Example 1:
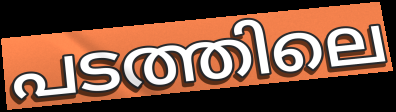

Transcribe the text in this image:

പടത്തിലെ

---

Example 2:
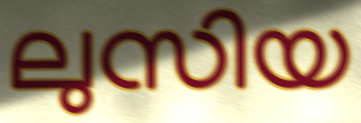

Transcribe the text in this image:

ലുസിയ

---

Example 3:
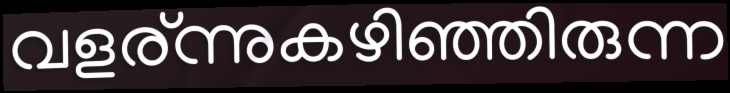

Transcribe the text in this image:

വളര്ന്നുകഴിഞ്ഞിരുന്ന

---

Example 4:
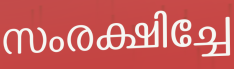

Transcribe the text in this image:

സംരക്ഷിച്ചേ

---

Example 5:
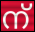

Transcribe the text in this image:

ന്